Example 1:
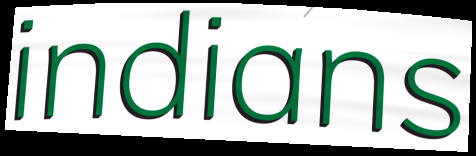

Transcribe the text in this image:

indians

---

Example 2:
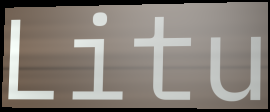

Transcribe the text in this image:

Litu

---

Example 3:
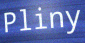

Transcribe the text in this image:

Pliny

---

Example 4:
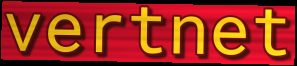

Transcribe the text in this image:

vertnet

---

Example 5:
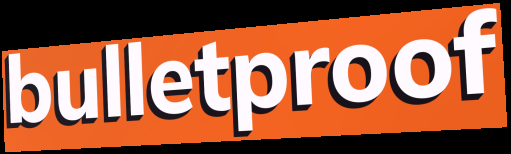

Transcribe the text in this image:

bulletproof